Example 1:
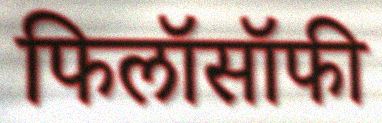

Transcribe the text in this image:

फिलॉसॉफी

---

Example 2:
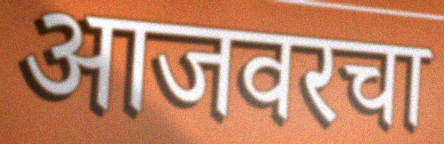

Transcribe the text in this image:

आजवरचा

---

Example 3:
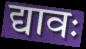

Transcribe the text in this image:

द्यावः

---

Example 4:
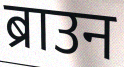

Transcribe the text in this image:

ब्राउन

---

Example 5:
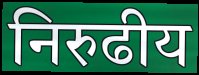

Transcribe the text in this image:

निरुढीय